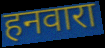
हनवारा